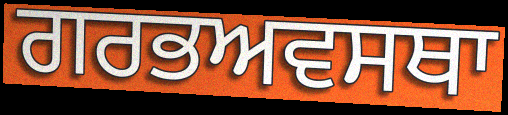
ਗਰਭਅਵਸਥਾ